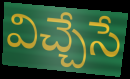
విచ్చేసే